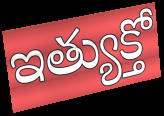
ఇత్యుక్తో